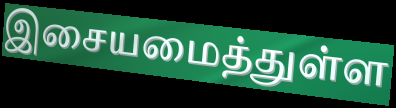
இசையமைத்துள்ள